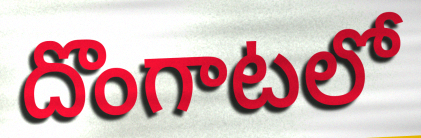
దొంగాటలో